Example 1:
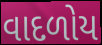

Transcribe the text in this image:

વાદળોય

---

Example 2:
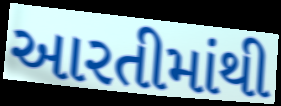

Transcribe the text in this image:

આરતીમાંથી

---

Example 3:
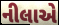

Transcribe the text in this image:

નીલાએ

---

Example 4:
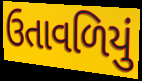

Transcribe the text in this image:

ઉતાવળિયું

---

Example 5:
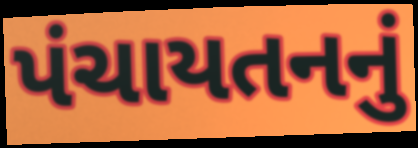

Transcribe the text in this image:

પંચાયતનનું